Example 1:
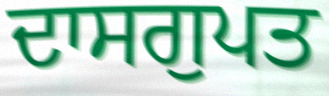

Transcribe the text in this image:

ਦਾਸਗੁਪਤ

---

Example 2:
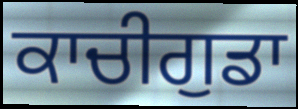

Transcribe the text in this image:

ਕਾਚੀਗੁਡਾ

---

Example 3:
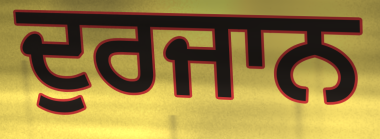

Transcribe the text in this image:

ਦੁਰਜਾਨ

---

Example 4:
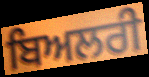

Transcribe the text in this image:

ਬਿਅਲਰੀ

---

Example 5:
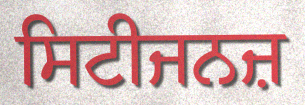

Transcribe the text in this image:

ਸਿਟੀਜਨਜ਼